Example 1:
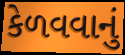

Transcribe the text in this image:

કેળવવાનું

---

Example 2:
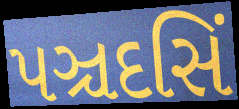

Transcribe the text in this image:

પઞ્ચદસિં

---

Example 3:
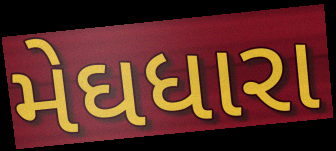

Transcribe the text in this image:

મેઘધારા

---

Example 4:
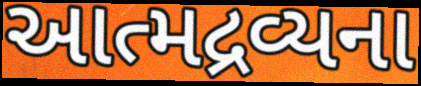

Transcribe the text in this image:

આત્મદ્રવ્યના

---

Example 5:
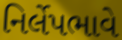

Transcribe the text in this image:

નિર્લેપભાવે